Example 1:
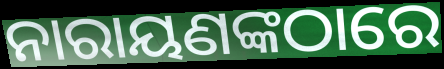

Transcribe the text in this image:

ନାରାୟଣଙ୍କଠାରେ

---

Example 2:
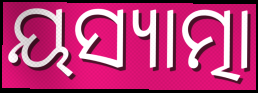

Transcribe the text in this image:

ୟସ୍ୟାତ୍ମା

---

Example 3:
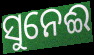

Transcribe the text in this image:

ସୁନେଈ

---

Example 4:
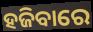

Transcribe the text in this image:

ହଜିବାରେ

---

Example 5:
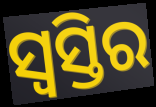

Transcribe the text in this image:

ସ୍ଵସ୍ତିର